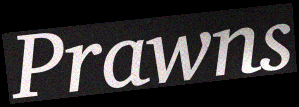
Prawns